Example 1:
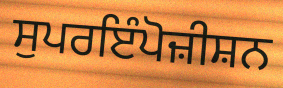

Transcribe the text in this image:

ਸੁਪਰਇੰਪੋਜ਼ੀਸ਼ਨ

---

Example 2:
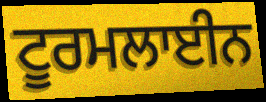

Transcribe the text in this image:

ਟੂਰਮਲਾਈਨ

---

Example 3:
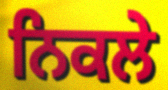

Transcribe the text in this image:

ਨਿਕਲੇ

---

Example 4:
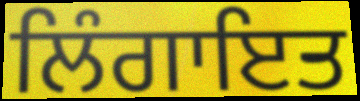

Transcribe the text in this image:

ਲਿੰਗਾਇਤ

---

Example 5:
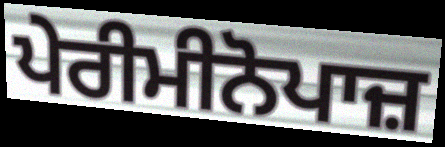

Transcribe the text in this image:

ਪੇਰੀਮੀਨੋਪਾਜ਼